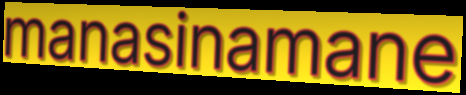
manasinamane